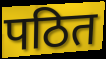
पठित